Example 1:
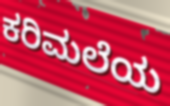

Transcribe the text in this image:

ಕರಿಮಲೆಯ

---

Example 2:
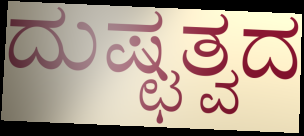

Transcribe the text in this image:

ದುಷ್ಟತ್ವದ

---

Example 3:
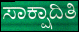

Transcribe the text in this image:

ಸಾಕ್ಷಾದಿತಿ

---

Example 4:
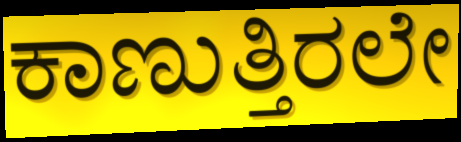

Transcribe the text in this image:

ಕಾಣುತ್ತಿರಲೇ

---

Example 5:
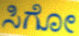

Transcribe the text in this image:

ಸಿಗೋ